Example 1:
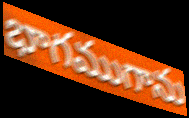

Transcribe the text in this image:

భాగముగాను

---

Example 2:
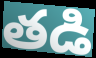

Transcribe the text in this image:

తడి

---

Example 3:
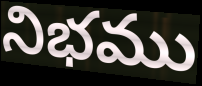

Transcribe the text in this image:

నిభము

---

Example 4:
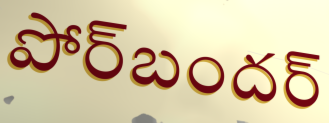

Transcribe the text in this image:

పోర్‌బందర్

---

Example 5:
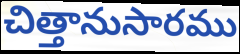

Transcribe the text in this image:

చిత్తానుసారము